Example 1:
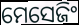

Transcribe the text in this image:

ମେସେଜିଂ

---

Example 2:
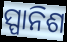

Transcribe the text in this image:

ସ୍ପାନିଶ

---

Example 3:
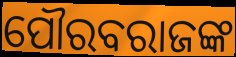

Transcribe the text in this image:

ପୌରବରାଜଙ୍କ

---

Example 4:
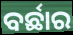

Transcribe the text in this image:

ବର୍ଛାର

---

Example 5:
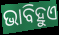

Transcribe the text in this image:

ଭାବିହୁଏ